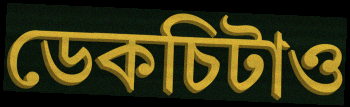
ডেকচিটাও